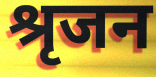
श्रृजन